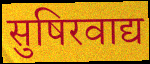
सुषिरवाद्य